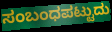
ಸಂಬಂಧಪಟ್ಟುದು